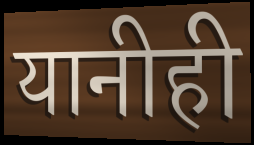
यानीही